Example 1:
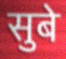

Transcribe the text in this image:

सुबे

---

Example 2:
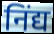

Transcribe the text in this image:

निंद्य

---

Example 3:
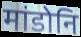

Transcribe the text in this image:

मांडोनि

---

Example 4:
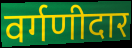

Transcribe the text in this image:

वर्गणीदार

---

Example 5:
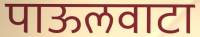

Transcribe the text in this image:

पाऊलवाटा